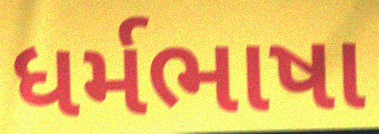
ધર્મભાષા